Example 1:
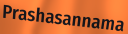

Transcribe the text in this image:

Prashasannama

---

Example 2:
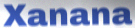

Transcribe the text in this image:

Xanana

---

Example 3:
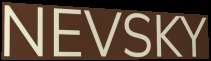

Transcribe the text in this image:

NEVSKY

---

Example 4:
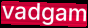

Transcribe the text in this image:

vadgam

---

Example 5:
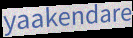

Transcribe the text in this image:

yaakendare